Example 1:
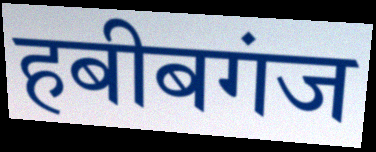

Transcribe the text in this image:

हबीबगंज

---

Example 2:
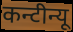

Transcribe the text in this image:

कन्टीन्यू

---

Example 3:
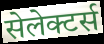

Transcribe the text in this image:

सेलेक्टर्स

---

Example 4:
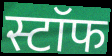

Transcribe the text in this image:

स्‍टॉफ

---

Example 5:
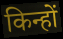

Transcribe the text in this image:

किन्हों